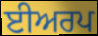
ਈਅਰਪ